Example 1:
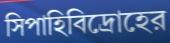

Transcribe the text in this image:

সিপাহিবিদ্রোহের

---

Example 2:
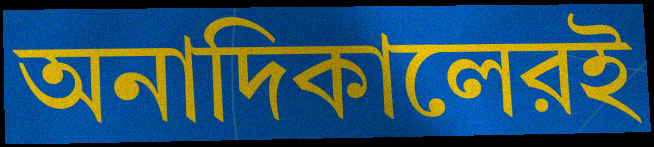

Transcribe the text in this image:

অনাদিকালেরই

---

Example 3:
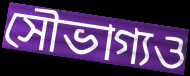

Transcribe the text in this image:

সৌভাগ্যও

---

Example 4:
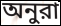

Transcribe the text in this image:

অনুরা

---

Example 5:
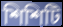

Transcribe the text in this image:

শিশিটি